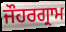
ਜੌਹਰਗ੍ਰਾਮ